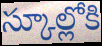
స్కూల్లోకి